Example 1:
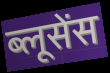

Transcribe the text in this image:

ब्लूसेंस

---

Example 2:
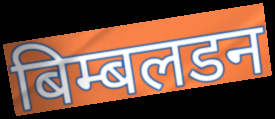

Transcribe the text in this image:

बिम्बलडन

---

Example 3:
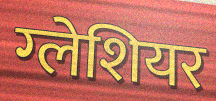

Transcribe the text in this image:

ग्‍लेशियर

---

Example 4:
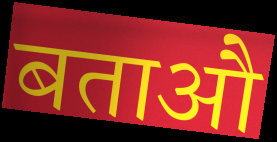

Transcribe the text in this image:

बताऔ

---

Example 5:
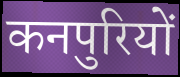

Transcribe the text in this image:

कनपुरियों